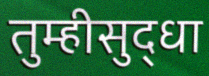
तुम्हीसुद्धा